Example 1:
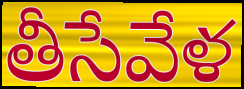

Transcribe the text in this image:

తీసేవేళ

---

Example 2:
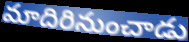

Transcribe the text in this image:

మాదిరినుంచాడు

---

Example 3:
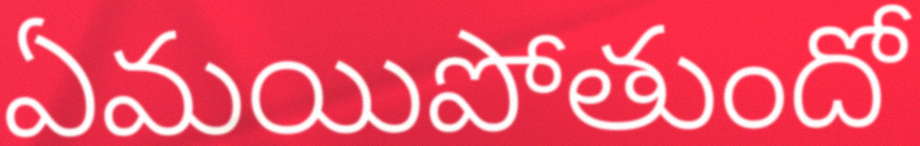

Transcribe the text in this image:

ఏమయిపోతుందో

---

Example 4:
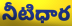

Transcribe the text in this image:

నీటిధార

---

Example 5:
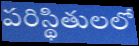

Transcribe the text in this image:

పరిస్థితులలో